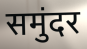
समुंदर